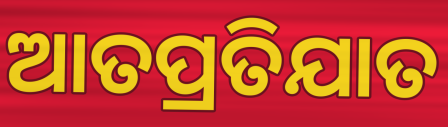
ଆତପ୍ରତିଯାତ